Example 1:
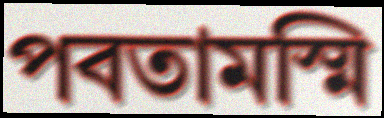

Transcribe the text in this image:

পবতামস্মি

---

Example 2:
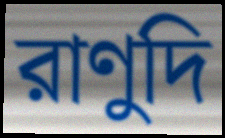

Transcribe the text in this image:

রাণুদি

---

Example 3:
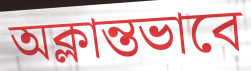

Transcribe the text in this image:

অক্লান্তভাবে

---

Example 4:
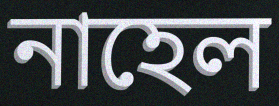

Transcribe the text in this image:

নাহেল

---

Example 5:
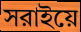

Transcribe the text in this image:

সরাইয়ে